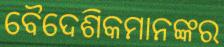
ବୈଦେଶିକମାନଙ୍କର